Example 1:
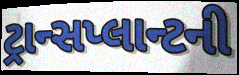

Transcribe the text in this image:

ટ્રાન્સપ્લાન્ટની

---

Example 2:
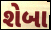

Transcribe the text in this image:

શેબા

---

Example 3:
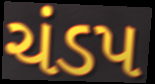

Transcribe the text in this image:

ચંડપ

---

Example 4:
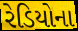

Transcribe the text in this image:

રેડિયોના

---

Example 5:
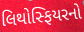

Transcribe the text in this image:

લિથોસ્ફિયરનો